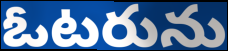
ఓటరును